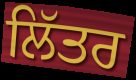
ਲਿੱਤਰ